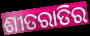
ଶୀତରାତିର